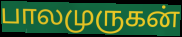
பாலமுருகன்